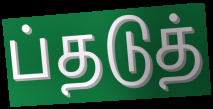
ப்தடுத்